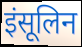
इंसूलिन